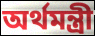
অর্থমন্ত্রী